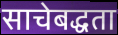
साचेबद्धता